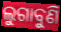
ଲୁଗାବୁଣି